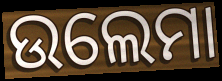
ଉଲେମା